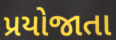
પ્રયોજાતા